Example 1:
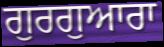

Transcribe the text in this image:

ਗੁਰਗੁਆਰਾ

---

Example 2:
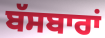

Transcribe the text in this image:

ਬੱਸਬਾਰਾਂ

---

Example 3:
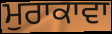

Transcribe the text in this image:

ਮੁਰਾਕਾਵਾ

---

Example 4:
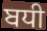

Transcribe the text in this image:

ਬਧੀ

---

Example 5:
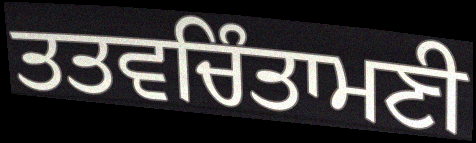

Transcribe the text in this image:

ਤਤਵਚਿੰਤਾਮਣੀ